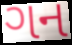
ગન